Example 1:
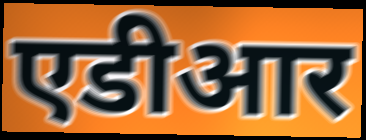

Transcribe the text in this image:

एडीआर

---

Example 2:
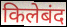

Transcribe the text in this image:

किलेबंद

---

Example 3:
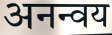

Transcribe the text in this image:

अनन्वय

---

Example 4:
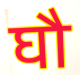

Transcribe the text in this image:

घौ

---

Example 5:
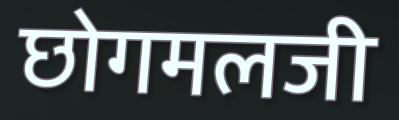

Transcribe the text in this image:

छोगमलजी